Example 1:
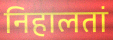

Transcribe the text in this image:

निहालतां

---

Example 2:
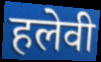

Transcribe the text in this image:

हलेवी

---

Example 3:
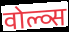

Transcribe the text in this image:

वोल्व्स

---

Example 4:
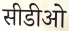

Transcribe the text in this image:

सीडीओ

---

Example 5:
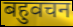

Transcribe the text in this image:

बहुवचन